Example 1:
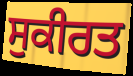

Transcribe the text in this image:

ਸੁਕੀਰਤ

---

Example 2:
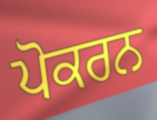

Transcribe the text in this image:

ਪੋਕਰਨ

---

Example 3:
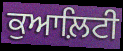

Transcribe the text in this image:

ਕੁਆਲ਼ਿਟੀ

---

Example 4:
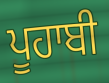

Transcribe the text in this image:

ਪੂਹਾਬੀ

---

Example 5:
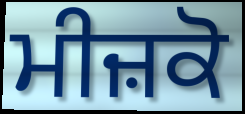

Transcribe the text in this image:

ਮੀਜ਼ਕੋ